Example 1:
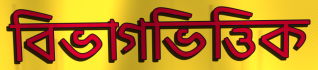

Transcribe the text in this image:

বিভাগভিত্তিক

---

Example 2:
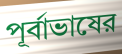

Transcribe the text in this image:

পূর্বাভাষের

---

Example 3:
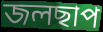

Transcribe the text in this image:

জলছাপ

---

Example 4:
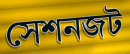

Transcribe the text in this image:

সেশনজট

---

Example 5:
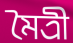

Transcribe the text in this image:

মৈত্রী